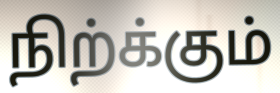
நிற்க்கும்